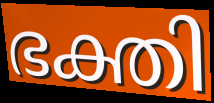
ഭക്തി